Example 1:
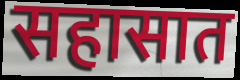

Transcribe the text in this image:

सहासात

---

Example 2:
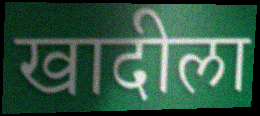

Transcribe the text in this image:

खादीला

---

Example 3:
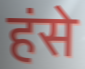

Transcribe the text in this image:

हंसे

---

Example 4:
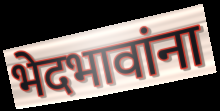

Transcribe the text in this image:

भेदभावांना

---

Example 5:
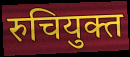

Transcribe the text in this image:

रुचियुक्त